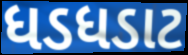
ધડધડાટ